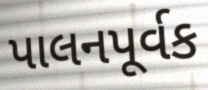
પાલનપૂર્વક